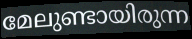
മേലുണ്ടായിരുന്ന